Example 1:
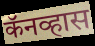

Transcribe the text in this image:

कॅनव्हास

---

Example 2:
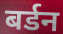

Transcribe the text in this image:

बर्डन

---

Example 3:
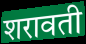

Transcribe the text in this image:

शरावती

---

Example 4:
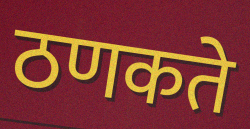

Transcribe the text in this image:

ठणकते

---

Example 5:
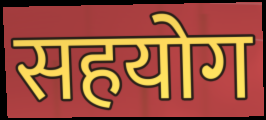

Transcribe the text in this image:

सहयोग